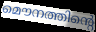
മൌനത്തിന്റെ